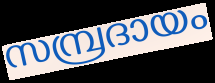
സമ്പ്രദായം